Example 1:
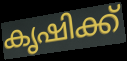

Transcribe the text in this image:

കൃഷിക്ക്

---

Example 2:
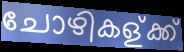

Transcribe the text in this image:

ചോഴികള്ക്ക്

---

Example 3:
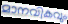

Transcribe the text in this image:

മാനവികവും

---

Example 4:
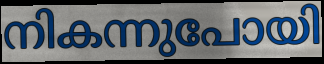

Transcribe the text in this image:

നികന്നുപോയി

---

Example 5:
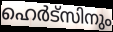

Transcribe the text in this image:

ഹെർട്സിനും